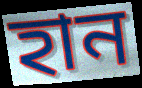
হান